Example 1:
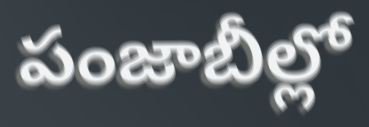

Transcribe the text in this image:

పంజాబీల్లో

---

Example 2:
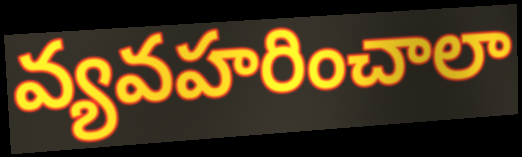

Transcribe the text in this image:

వ్యవహరించాలా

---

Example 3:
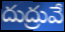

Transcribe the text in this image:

దుద్రువే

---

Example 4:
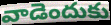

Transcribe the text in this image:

వాడెందుకు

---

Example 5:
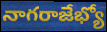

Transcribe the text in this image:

నాగరాజేభ్యో